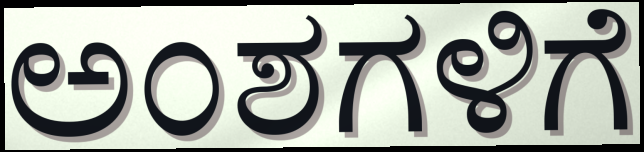
ಅಂಶಗಳಿಗೆ